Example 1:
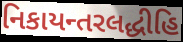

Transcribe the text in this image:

નિકાયન્તરલદ્ધીહિ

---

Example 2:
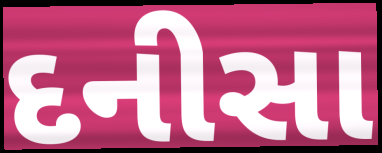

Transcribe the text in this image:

દનીસા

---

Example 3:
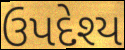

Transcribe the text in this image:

ઉપદેશ્ય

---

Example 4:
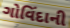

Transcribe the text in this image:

ગોવિંદાની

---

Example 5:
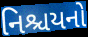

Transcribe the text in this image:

નિશ્ચયનો